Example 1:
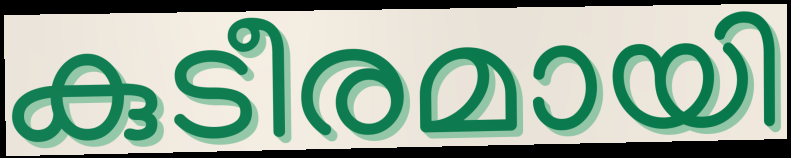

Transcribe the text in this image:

കുടീരമായി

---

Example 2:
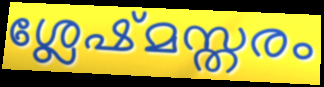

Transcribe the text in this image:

ശ്ലേഷ്മസ്തരം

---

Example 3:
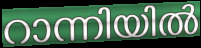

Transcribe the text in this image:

റാന്നിയിൽ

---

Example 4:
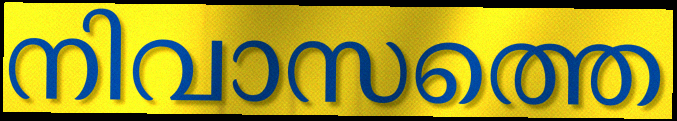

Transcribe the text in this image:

നിവാസത്തെ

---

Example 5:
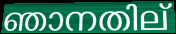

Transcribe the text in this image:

ഞാനതില്